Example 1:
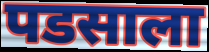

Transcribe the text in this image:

पडसाला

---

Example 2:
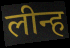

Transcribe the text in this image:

लीन्ह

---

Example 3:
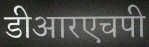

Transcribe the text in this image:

डीआरएचपी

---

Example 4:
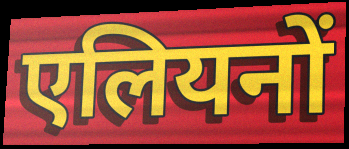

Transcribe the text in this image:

एलियनों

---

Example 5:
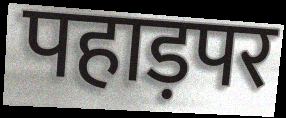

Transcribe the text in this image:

पहाड़पर